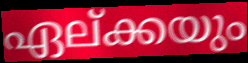
ഏല്ക്കയും